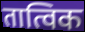
तात्विक